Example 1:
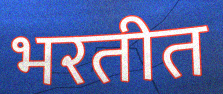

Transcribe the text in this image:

भरतीत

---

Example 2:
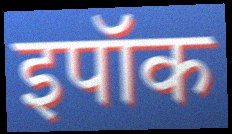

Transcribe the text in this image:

इपॉक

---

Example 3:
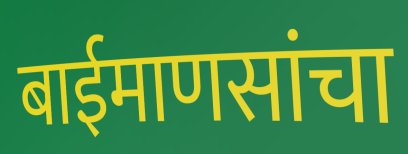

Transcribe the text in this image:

बाईमाणसांचा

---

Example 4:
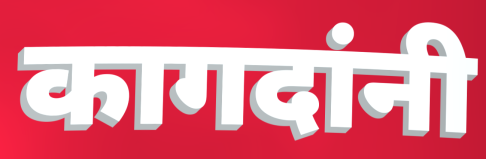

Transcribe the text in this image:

कागदांनी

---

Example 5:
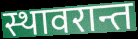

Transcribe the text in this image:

स्थावरान्त